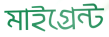
মাইগ্রেন্ট